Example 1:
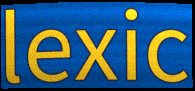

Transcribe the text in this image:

lexic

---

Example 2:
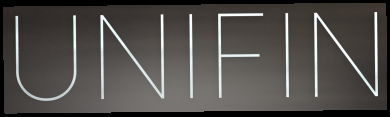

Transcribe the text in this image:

UNIFIN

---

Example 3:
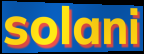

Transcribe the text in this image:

solani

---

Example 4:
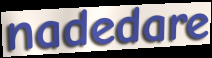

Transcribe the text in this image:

nadedare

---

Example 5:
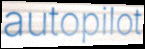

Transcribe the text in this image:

autopilot